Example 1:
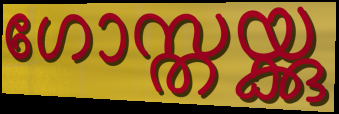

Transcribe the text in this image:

ഗോസ്തയ്ക്കു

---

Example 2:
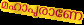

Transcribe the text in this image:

മഹാപുരാണേ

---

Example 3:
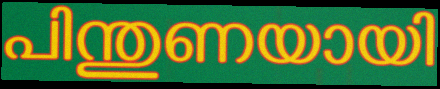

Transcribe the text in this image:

പിന്തുണയായി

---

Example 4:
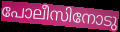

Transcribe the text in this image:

പോലീസിനോടു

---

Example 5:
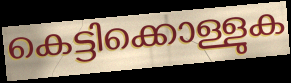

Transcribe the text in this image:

കെട്ടിക്കൊള്ളുക